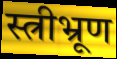
स्त्रीभ्रूण